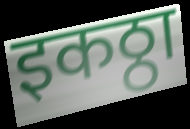
इकठ्ठा